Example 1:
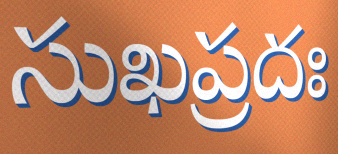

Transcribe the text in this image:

సుఖప్రదః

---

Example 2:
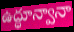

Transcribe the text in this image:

ఉద్ధూన్వానా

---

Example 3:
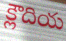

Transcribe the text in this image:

క్లౌదియ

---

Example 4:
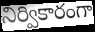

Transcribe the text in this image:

నిర్వికారంగా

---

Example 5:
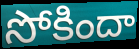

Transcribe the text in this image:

సోకిందా